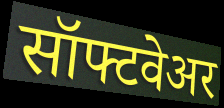
सॉफ्टवेअर